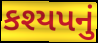
કશ્યપનું